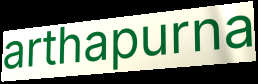
arthapurna